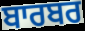
ਬਾਰਬਰ